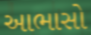
આભાસો